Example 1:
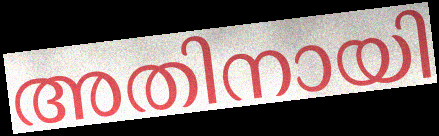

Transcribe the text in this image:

അതിനായി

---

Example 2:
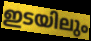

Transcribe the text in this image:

ഇടയിലും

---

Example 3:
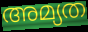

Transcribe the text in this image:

അമ്യത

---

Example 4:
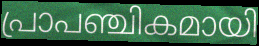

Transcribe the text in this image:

പ്രാപഞ്ചികമായി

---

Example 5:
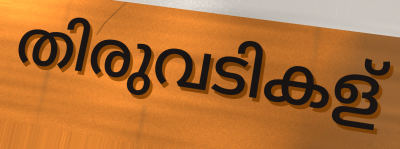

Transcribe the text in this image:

തിരുവടികള്